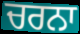
ਚਰਨਾ